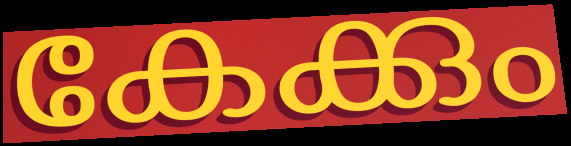
കേക്കും